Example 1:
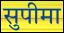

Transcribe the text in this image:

सुपीमा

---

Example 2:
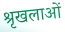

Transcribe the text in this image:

श्रृखलाओं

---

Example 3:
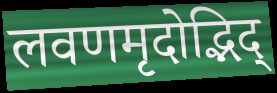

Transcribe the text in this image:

लवणमृदोद्भिद्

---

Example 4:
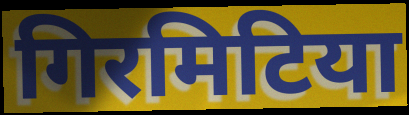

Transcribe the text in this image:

गिरमिटिया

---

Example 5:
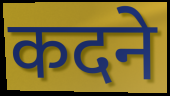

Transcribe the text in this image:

कदने